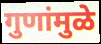
गुणांमुळे